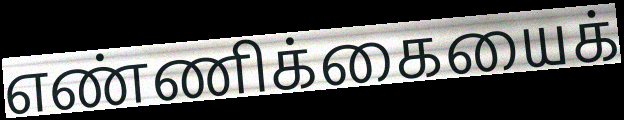
எண்ணிக்கையைக்